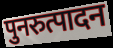
पुनरुत्पादन